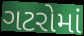
ગટરોમાં